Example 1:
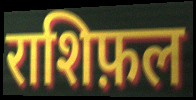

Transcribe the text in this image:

राशिफ़ल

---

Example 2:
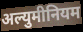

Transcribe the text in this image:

अल्युमीनियम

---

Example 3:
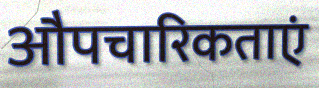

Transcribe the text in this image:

औपचारिकताएं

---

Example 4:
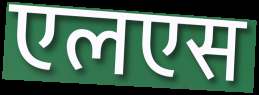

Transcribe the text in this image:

एलएस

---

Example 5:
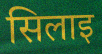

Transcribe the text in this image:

सिलाइ